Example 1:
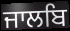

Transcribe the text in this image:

ਜਾਲਬਿ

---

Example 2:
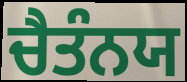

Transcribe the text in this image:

ਚੈਤੰਨਯ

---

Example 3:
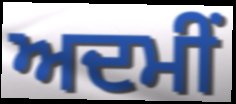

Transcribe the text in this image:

ਅਦਮੀਂ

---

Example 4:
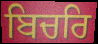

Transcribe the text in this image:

ਬਿਚਰਿ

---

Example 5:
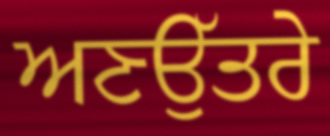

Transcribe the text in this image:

ਅਣਉੱਤਰੇ